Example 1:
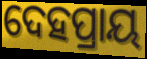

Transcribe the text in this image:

ଦେହପ୍ରାୟ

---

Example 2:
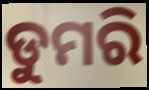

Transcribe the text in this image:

ଡୁମରି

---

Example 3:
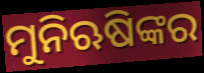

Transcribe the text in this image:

ମୁନିଋଷିଙ୍କର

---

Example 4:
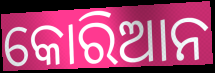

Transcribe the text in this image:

କୋରିଆନ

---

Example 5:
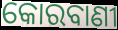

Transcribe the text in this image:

କୋରବାଣୀ